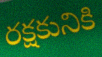
రక్షకునికి